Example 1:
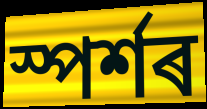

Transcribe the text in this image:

স্পৰ্শৰ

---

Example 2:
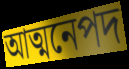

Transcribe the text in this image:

আত্মনেপদ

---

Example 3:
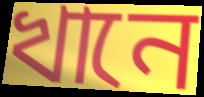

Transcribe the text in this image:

খানে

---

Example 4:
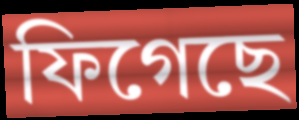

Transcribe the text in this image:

ফিগেছে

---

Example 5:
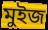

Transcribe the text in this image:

মুইজ